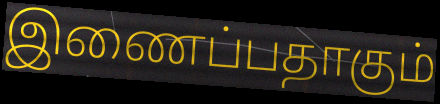
இணைப்பதாகும்